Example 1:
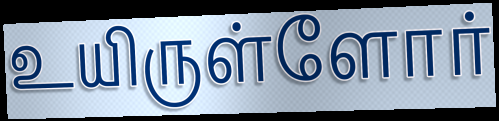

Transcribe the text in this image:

உயிருள்ளோர்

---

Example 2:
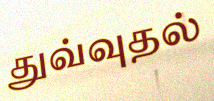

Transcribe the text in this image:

துவ்வுதல்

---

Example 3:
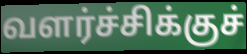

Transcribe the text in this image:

வளர்ச்சிக்குச்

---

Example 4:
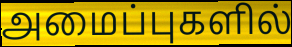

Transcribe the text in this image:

அமைப்புகளில்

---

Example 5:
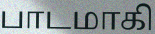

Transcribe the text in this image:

பாடமாகி